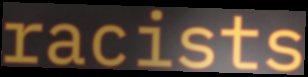
racists